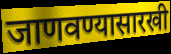
जाणवण्यासारखी